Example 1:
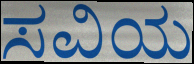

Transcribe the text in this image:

ಸವಿಯ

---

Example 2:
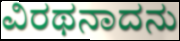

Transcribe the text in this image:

ವಿರಥನಾದನು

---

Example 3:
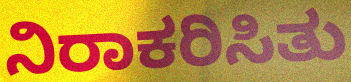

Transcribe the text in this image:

ನಿರಾಕರಿಸಿತು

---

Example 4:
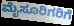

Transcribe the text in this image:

ಮೈಸೂರಿಗರಿಗೆ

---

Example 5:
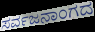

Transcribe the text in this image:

ಸರ್ವಜನಾಂಗದ